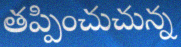
తప్పించుచున్న